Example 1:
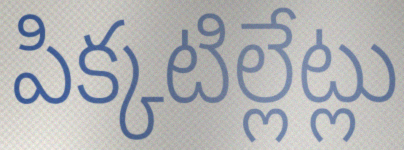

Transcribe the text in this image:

పిక్కటిల్లేట్లు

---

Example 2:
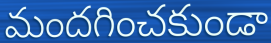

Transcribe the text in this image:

మందగించకుండా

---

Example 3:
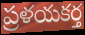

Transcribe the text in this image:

ప్రళయకర్త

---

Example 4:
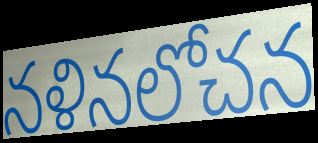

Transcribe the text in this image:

నళినలోచన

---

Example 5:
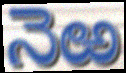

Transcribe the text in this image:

నెఱ